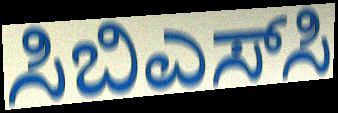
ಸಿಬಿಎಸ್‌ಸಿ